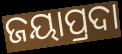
ଜୟାପ୍ରଦା